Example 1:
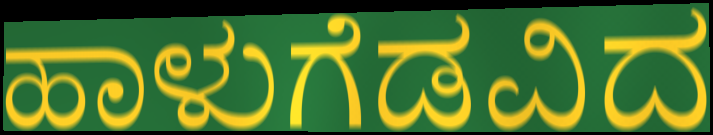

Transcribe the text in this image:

ಹಾಳುಗೆಡವಿದ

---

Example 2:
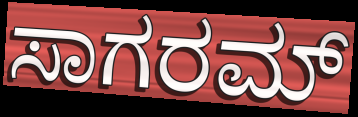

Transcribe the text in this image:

ಸಾಗರಮ್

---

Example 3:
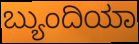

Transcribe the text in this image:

ಬ್ಯುಂದಿಯಾ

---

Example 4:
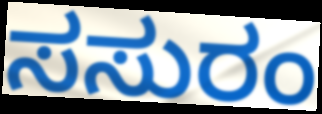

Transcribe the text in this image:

ಸಸುರಂ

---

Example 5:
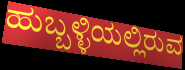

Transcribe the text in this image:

ಹುಬ್ಬಳ್ಳಿಯಲ್ಲಿರುವ